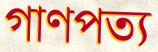
গাণপত্য